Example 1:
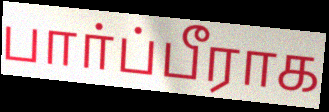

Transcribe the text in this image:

பார்ப்பீராக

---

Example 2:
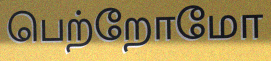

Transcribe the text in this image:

பெற்றோமோ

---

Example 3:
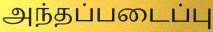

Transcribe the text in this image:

அந்தப்படைப்பு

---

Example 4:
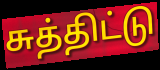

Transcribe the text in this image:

சுத்திட்டு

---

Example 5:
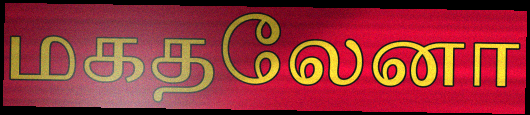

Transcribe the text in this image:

மகதலேனா